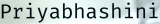
Priyabhashini